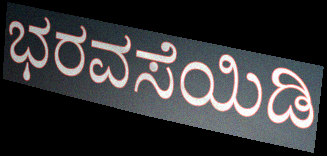
ಭರವಸೆಯಿಡಿ